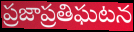
ప్రజాప్రతిఘటన